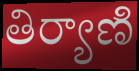
తిర్యాణి